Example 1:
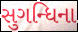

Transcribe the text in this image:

સુગન્ધિના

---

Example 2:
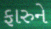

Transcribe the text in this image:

ફારુને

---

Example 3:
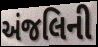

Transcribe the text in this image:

અંજલિની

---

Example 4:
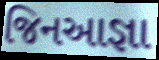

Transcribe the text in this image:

જિનઆજ્ઞા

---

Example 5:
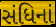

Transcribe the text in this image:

સંધિનાં